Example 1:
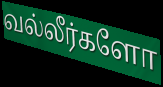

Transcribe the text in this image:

வல்லீர்களோ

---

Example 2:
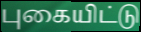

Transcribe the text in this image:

புகையிட்டு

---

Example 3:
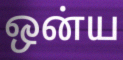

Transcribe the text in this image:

ஒன்ய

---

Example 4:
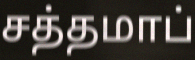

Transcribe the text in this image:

சத்தமாப்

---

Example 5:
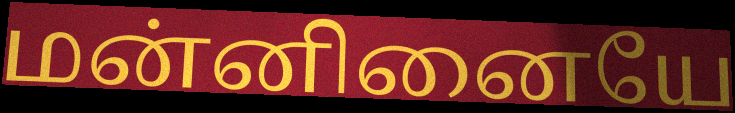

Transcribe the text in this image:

மன்னினையே